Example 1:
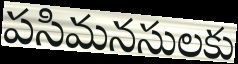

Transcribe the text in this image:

పసిమనసులకు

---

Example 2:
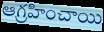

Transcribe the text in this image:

ఆగ్రహించాయి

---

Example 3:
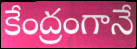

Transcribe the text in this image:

కేంద్రంగానే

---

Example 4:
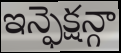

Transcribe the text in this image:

ఇన్ఫెక్షన్గా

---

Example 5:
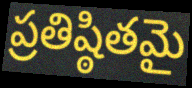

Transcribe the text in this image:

ప్రతిష్ఠితమై